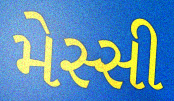
મેસ્સી